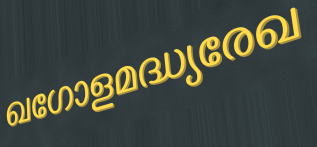
ഖഗോളമദ്ധ്യരേഖ